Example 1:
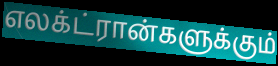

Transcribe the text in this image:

எலக்ட்ரான்களுக்கும்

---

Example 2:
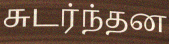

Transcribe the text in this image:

சுடர்ந்தன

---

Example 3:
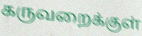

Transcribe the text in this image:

கருவறைக்குள்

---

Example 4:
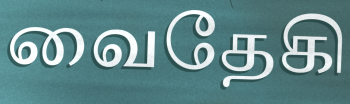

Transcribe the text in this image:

வைதேகி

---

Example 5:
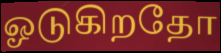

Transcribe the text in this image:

ஓடுகிறதோ